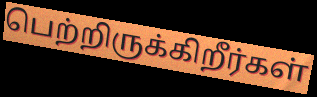
பெற்றிருக்கிறீர்கள்